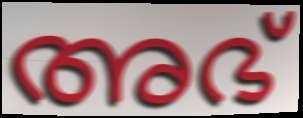
അഭ്